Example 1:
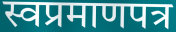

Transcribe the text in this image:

स्वप्रमाणपत्र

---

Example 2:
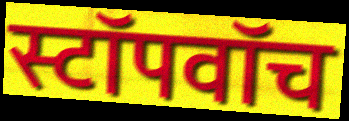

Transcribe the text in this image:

स्टॉपवॉच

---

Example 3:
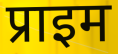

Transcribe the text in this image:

प्राइम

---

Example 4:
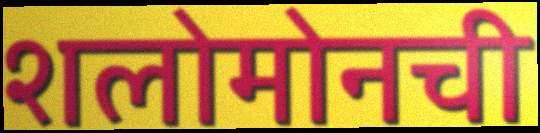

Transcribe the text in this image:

शलोमोनची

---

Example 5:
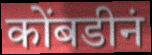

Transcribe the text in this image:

कोंबडीनं